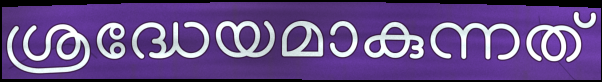
ശ്രദ്ധേയമാകുന്നത്